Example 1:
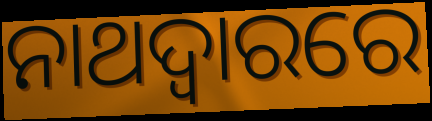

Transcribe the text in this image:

ନାଥଦ୍ୱାରରେ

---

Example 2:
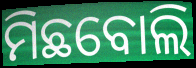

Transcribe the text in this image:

ମିଛବୋଲି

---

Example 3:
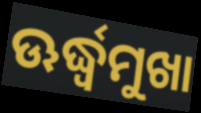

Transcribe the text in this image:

ଊର୍ଦ୍ଧ୍ବମୁଖା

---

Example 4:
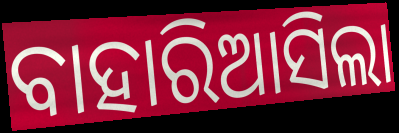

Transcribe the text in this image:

ବାହାରିଆସିଲା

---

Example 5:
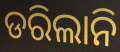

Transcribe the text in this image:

ଡରିଲାନି